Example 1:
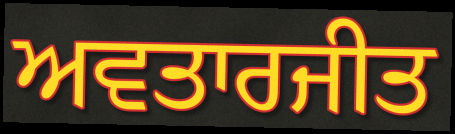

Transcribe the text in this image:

ਅਵਤਾਰਜੀਤ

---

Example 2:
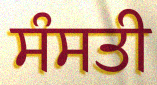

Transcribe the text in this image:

ਸੰਸਤੀ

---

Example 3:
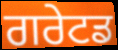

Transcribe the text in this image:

ਗਰੇਟਡ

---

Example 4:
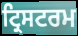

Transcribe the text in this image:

ਟ੍ਰਿਸਟਰਮ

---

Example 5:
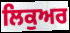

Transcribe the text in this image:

ਲਿਕੁਅਰ